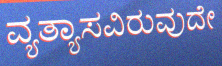
ವ್ಯತ್ಯಾಸವಿರುವುದೇ